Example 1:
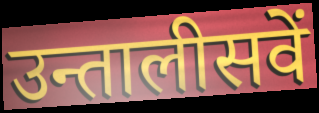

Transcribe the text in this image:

उन्तालीसवें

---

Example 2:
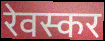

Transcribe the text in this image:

रेवस्कर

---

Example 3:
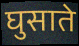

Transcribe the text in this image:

घुसाते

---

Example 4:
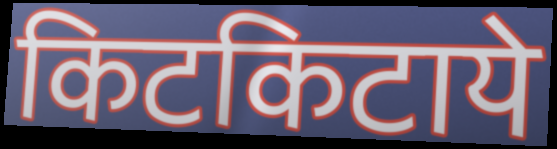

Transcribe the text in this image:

किटकिटाये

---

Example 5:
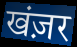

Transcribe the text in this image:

खंज़र